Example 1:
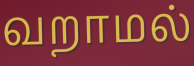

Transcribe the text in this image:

வறாமல்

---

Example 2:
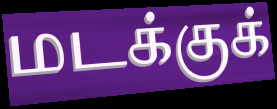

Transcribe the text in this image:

மடக்குக்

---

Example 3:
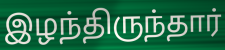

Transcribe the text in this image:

இழந்திருந்தார்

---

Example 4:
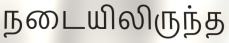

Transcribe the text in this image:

நடையிலிருந்த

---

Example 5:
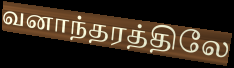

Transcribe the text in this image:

வனாந்தரத்திலே